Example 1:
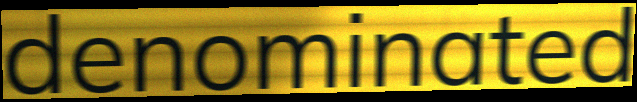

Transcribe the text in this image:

denominated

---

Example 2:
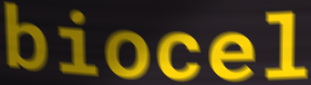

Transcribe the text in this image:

biocel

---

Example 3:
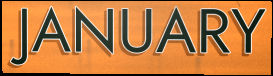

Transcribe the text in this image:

JANUARY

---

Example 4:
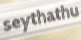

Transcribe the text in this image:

seythathu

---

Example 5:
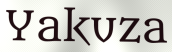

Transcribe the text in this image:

Yakuza